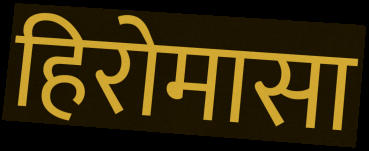
हिरोमासा